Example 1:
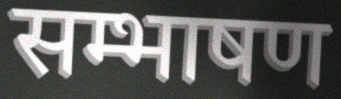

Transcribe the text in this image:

सम्भाषण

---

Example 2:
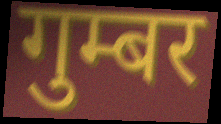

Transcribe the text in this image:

गुम्बर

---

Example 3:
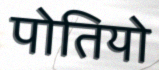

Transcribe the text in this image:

पोतियो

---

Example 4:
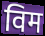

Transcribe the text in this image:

विम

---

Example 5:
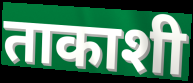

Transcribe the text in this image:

ताकाशी